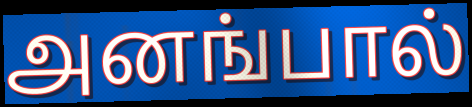
அனங்பால்